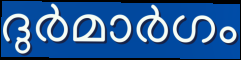
ദുർമാർഗം